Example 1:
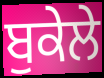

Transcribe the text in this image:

ਬੁਕੇਲੇ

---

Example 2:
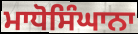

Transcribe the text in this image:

ਮਾਧੋਸਿੰਘਾਨਾ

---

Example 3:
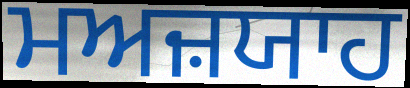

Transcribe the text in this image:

ਮਅਜ਼ਯਾਹ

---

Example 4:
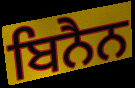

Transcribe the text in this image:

ਬਿਨੈਨ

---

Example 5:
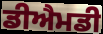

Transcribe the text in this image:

ਡੀਐਮਡੀ